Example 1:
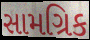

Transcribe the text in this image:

સામગ્રિક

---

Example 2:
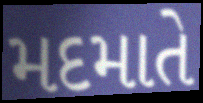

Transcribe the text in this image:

મદમાતે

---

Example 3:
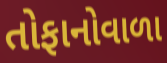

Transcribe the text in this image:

તોફાનોવાળા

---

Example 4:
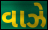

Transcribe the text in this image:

વાઝે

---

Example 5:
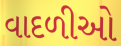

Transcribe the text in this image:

વાદળીઓ